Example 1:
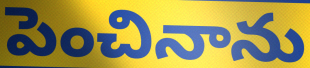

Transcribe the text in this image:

పెంచినాను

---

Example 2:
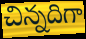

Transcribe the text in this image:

చిన్నదిగా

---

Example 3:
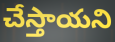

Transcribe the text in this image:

చేస్తాయని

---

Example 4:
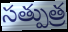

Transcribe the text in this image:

సత్పుత్ర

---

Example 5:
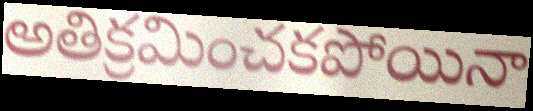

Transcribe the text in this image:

అతిక్రమించకపోయినా